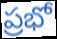
ప్రభో